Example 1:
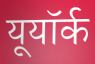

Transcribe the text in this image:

यूयॉर्क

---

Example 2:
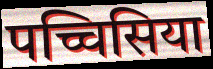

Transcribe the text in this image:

पच्चिसिया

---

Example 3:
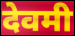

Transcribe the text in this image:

देवमी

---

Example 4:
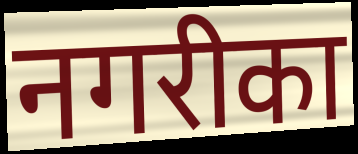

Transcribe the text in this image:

नगरीका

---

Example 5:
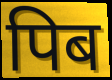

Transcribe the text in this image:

पिब